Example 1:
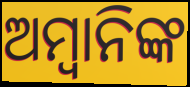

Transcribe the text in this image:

ଅମ୍ବାନିଙ୍କ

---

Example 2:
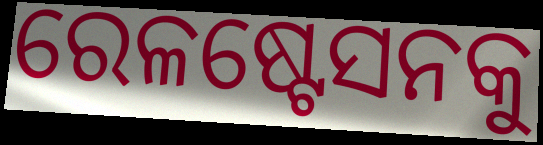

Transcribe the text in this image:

ରେଳଷ୍ଟେସନକୁ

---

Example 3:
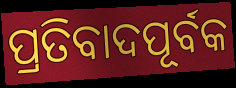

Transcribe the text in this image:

ପ୍ରତିବାଦପୂର୍ବକ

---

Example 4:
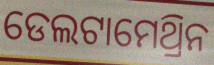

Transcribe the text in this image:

ଡେଲଟାମେଥ୍ରିନ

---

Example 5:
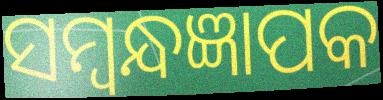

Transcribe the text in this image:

ସମ୍ବନ୍ଧଜ୍ଞାପକ